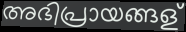
അഭിപ്രായങ്ങള്